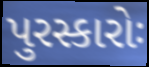
પુરસ્કારોઃ